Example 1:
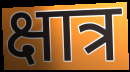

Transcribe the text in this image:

क्षात्र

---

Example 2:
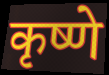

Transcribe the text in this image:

कृष्णे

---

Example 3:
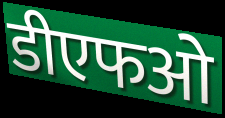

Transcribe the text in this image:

डीएफओ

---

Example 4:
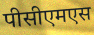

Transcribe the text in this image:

पीसीएमएस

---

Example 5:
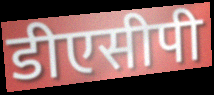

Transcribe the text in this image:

डीएसीपी